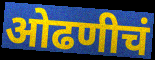
ओढणीचं